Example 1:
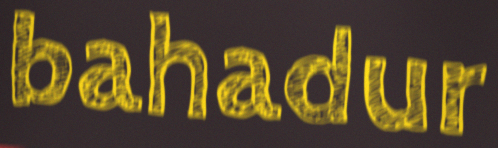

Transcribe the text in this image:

bahadur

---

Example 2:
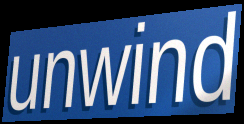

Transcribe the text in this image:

unwind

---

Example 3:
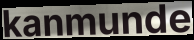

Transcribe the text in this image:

kanmunde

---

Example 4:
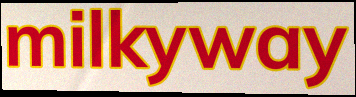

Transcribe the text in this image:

milkyway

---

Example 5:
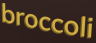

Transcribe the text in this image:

broccoli